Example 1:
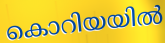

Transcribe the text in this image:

കൊറിയയിൽ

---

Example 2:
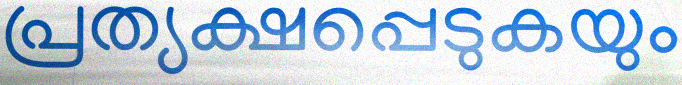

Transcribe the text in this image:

പ്രത്യക്ഷപ്പെടുകയും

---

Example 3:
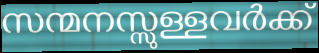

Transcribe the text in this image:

സന്മനസ്സുള്ളവർക്ക്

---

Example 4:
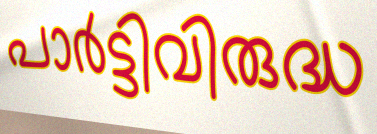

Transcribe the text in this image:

പാർട്ടിവിരുദ്ധ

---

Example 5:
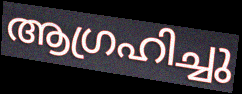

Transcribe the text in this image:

ആഗ്രഹിച്ചു